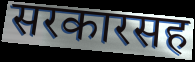
सरकारसह